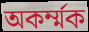
অকৰ্ম্মক